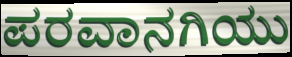
ಪರವಾನಗಿಯು